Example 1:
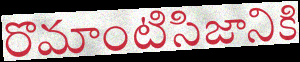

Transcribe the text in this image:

రొమాంటిసిజానికి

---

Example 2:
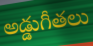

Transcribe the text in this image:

అడ్డుగీతలు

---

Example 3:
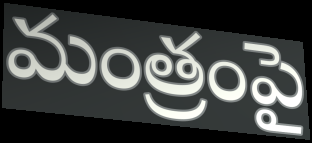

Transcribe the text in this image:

మంత్రంపై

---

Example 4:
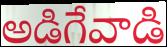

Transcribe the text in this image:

అడిగేవాడి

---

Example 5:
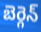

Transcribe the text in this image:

బెర్గెన్